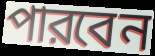
পারবেন